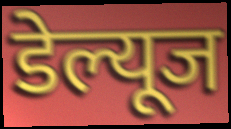
डेल्यूज